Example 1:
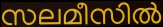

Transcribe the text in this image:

സലമീസിൽ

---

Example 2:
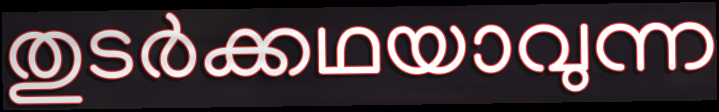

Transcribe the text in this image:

തുടർക്കഥയാവുന്ന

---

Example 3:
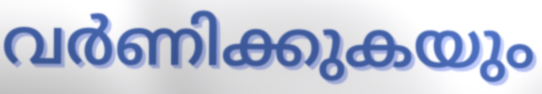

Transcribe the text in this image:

വർണിക്കുകയും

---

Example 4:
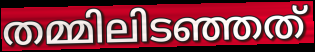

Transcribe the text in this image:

തമ്മിലിടഞ്ഞത്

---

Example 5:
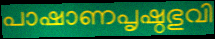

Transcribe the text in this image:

പാഷാണപൃഷ്ഠഭുവി